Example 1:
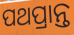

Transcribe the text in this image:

ପଥପ୍ରାନ୍ତ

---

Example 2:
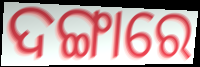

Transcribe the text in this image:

ଦଙ୍ଗାରେ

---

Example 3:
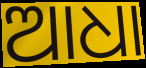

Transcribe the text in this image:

ଆଧା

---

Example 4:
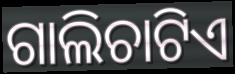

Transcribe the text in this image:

ଗାଲିଚାଟିଏ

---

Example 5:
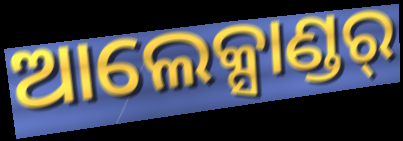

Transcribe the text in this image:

ଆଲେକ୍ସାଣ୍ଡର୍